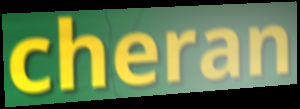
cheran